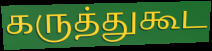
கருத்துகூட